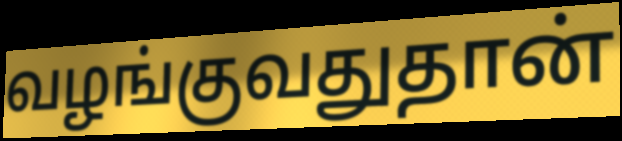
வழங்குவதுதான்